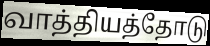
வாத்தியத்தோடு